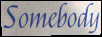
Somebody